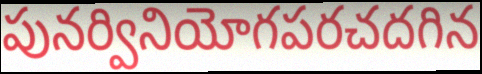
పునర్వినియోగపరచదగిన